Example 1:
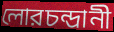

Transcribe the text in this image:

লোরচন্দ্রানী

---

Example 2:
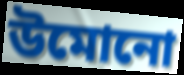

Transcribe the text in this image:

উমোনো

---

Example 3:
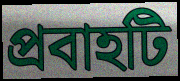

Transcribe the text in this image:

প্রবাহটি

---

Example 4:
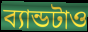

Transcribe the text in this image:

ব্যান্ডটাও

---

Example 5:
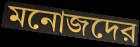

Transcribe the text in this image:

মনোজদের